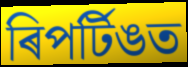
ৰিপৰ্টিঙত